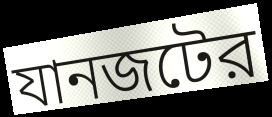
যানজটের